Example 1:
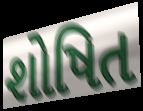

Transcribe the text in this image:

શોષિત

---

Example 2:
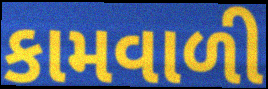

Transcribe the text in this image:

કામવાળી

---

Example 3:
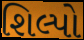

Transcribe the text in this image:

શિલ્પો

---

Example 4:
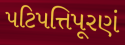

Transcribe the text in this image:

પટિપત્તિપૂરણં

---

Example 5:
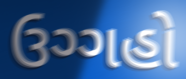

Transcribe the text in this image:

ઉગ્ગહો